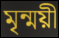
মৃন্ময়ী